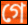
গে